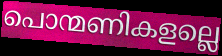
പൊന്മണികളല്ലെ